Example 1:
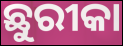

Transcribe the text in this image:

ଛୁରୀକା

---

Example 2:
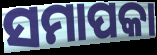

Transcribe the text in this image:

ସମାପକା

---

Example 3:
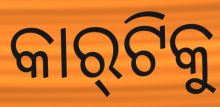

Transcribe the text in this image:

କାର୍‌ଟିକୁ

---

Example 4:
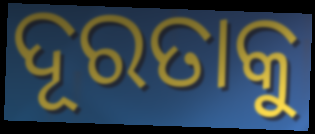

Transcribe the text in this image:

ଦୂରତାକୁ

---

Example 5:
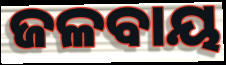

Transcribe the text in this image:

ଜଳବାୟ